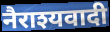
नैराश्यवादी